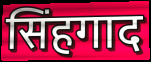
सिंहगाद